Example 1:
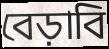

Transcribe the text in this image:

বেড়াবি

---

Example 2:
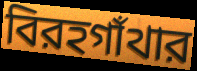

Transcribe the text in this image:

বিরহগাঁথার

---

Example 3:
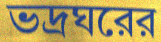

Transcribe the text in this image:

ভদ্রঘরের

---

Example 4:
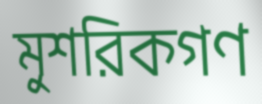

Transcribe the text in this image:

মুশরিকগণ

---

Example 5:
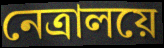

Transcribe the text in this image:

নেত্রালয়ে